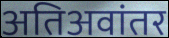
अतिअवांतर